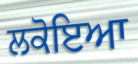
ਲਕੋਇਆ